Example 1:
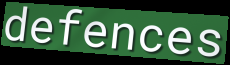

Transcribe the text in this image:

defences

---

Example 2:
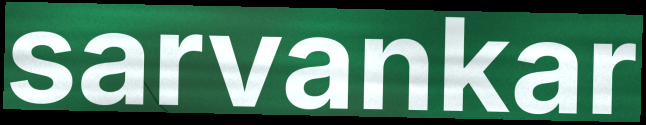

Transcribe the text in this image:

sarvankar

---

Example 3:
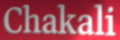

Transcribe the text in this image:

Chakali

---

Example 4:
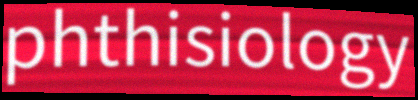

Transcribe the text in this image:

phthisiology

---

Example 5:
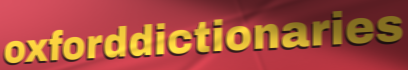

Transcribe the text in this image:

oxforddictionaries